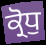
ਕ੍ਰੋਧੁ